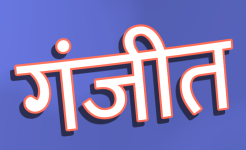
गंजीत